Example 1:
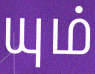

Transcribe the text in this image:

யும்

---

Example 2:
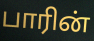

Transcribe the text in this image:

பாரின்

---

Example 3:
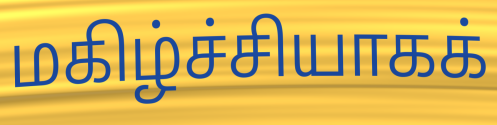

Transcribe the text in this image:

மகிழ்ச்சியாகக்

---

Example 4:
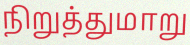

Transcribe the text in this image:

நிறுத்துமாறு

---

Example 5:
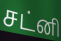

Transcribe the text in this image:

சட்னி